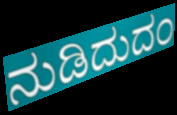
ನುಡಿದುದಂ